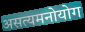
असत्यमनोयोग